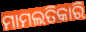
ମାମଲତିକାରି